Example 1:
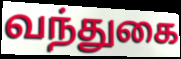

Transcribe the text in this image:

வந்துகை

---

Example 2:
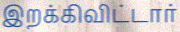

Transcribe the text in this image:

இறக்கிவிட்டார்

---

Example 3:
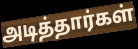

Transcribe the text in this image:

அடித்தார்கள்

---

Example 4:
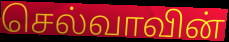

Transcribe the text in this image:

செல்வாவின்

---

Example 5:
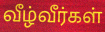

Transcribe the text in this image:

வீழ்வீர்கள்